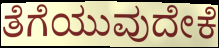
ತೆಗೆಯುವುದೇಕೆ